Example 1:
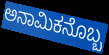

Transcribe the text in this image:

ಅನಾಮಿಕನೊಬ್ಬ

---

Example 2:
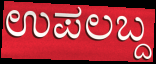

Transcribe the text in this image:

ಉಪಲಬ್ದ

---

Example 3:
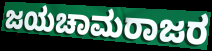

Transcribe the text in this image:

ಜಯಚಾಮರಾಜರ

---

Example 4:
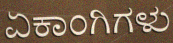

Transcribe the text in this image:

ಏಕಾಂಗಿಗಳು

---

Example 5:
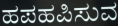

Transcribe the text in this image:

ಹಪಹಪಿಸುವ